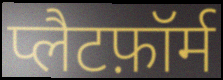
प्लैटफ़ॉर्म